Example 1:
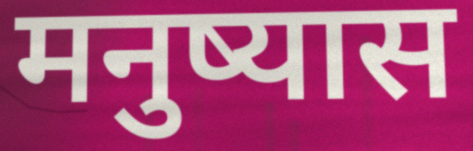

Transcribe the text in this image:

मनुष्यास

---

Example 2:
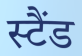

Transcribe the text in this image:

स्‍टैंड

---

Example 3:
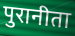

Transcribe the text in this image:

पुरानीता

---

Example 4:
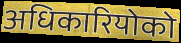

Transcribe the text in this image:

अधिकारियोको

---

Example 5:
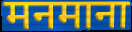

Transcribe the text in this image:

मनमाना